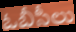
ఓబీసీలు